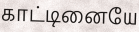
காட்டினையே